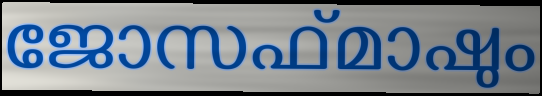
ജോസഫ്മാഷും